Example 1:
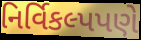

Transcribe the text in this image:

નિર્વિકલ્પપણે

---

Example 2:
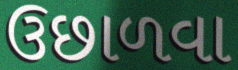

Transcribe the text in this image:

ઉછાળવા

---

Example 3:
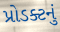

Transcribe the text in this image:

પ્રોડક્ટનું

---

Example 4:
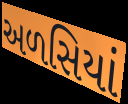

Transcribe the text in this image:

અળસિયાં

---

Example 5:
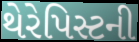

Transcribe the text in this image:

થેરેપિસ્ટની